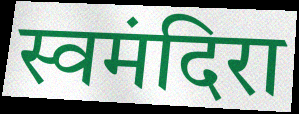
स्वमंदिरा